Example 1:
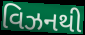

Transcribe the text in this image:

વિઝનથી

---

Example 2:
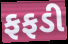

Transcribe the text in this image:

ફફડી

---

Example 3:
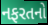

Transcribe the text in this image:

નફરતનો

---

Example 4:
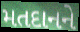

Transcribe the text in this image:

મતદાનને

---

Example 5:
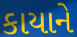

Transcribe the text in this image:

કાયાને